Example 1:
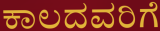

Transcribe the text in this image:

ಕಾಲದವರಿಗೆ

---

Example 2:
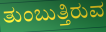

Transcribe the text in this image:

ತುಂಬುತ್ತಿರುವ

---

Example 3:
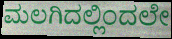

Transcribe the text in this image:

ಮಲಗಿದಲ್ಲಿಂದಲೇ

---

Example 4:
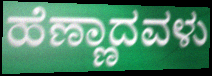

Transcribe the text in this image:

ಹೆಣ್ಣಾದವಳು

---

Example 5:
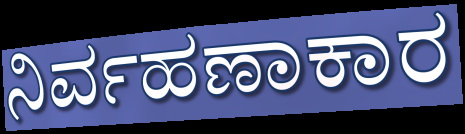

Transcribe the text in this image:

ನಿರ್ವಹಣಾಕಾರ